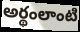
అర్థంలాంటి